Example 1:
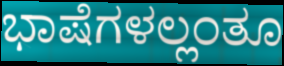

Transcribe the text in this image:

ಭಾಷೆಗಳಲ್ಲಂತೂ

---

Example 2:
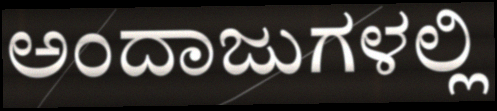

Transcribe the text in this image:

ಅಂದಾಜುಗಳಲ್ಲಿ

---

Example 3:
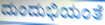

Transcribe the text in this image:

ದುಂದುಭಿಯಂತೆ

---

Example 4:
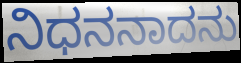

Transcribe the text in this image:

ನಿಧನನಾದನು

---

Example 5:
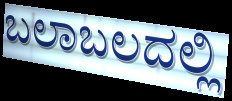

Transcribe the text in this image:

ಬಲಾಬಲದಲ್ಲಿ